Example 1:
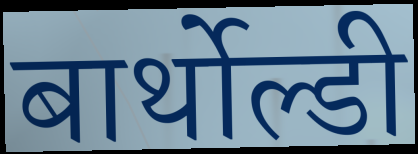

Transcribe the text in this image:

बार्थोल्डी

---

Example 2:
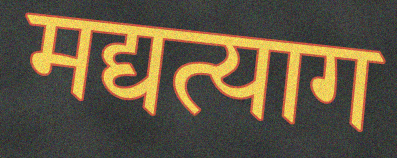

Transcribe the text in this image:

मद्यत्याग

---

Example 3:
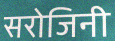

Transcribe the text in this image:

सरोजिनी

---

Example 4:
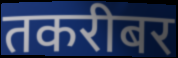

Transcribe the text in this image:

तकरीबर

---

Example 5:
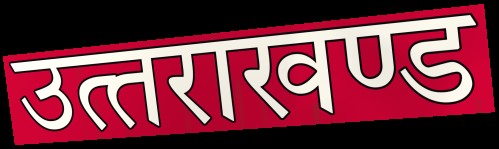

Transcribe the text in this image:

उत्‍तराखण्‍ड